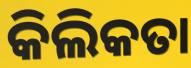
କିଲିକତା